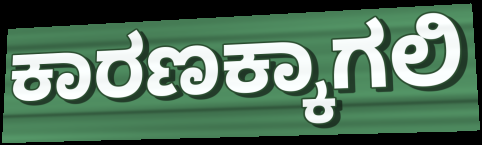
ಕಾರಣಕ್ಕಾಗಲಿ